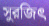
সুরজিৎ